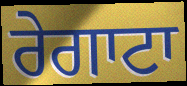
ਰੇਗਾਟਾ